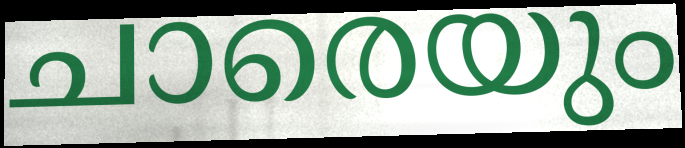
ചാരെയും